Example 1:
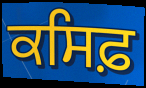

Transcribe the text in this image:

ਕਸਿਫ਼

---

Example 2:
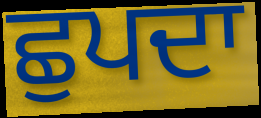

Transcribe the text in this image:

ਛੁਪਦਾ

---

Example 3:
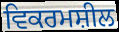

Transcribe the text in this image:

ਵਿਕਰਮਸ਼ੀਲ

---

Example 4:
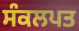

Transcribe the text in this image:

ਸੰਕਲਪਤ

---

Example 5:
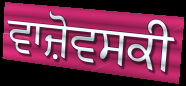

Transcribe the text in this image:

ਵਾਜ਼ੋਵਸਕੀ